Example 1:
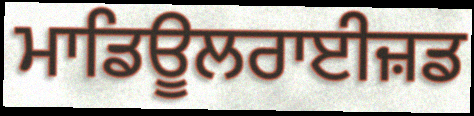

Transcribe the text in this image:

ਮਾਡਿਊਲਰਾਈਜ਼ਡ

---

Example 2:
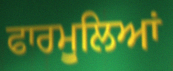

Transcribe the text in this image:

ਫਾਰਮੂਲਿਆਂ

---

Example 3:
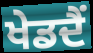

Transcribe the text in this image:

ਖੇਡਦੈਂ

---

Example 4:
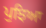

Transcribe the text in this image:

ਪੁਝਿਆ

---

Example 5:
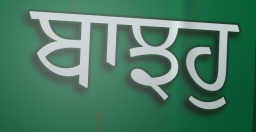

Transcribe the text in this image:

ਬਾਝਹੁ